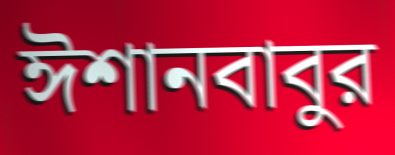
ঈশানবাবুর